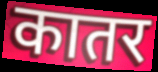
कातर